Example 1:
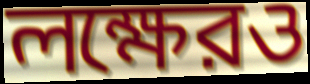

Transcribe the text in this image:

লক্ষেরও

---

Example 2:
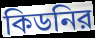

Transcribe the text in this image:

কিডনির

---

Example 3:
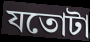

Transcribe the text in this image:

যতোটা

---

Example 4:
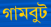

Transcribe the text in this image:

গামবুট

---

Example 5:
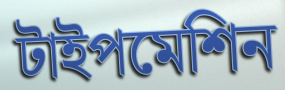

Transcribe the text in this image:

টাইপমেশিন